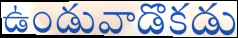
ఉండువాడొకడు